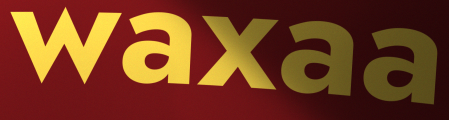
waxaa